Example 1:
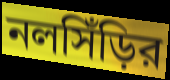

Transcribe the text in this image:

নলসিঁড়ির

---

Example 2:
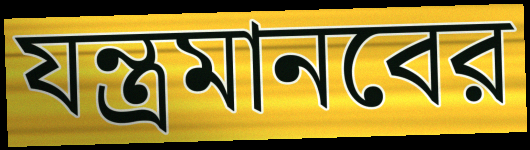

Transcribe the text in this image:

যন্ত্রমানবের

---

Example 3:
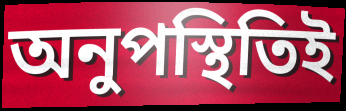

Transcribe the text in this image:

অনুপস্থিতিই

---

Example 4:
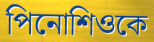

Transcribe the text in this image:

পিনোশিওকে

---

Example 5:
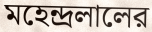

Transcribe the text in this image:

মহেন্দ্রলালের